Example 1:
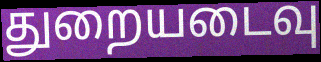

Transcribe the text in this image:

துறையடைவு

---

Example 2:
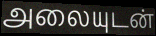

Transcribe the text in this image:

அலையுடன்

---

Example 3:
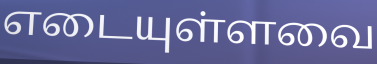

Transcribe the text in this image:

எடையுள்ளவை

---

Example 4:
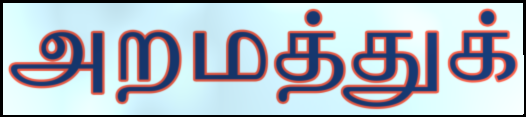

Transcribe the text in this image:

அறமத்துக்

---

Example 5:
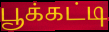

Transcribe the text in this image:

பூக்கட்டி